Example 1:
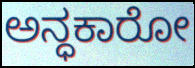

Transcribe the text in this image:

ಅನ್ಧಕಾರೋ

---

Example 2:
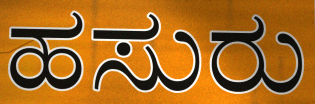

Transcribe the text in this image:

ಹಸುರು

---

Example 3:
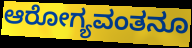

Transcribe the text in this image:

ಆರೋಗ್ಯವಂತನೂ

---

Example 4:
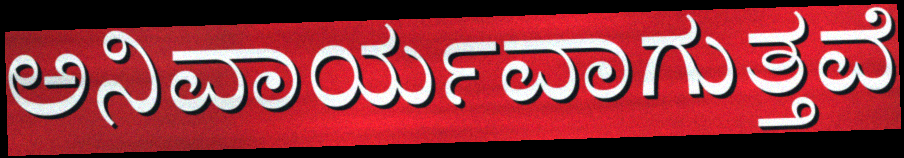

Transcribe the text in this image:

ಅನಿವಾರ್ಯವಾಗುತ್ತವೆ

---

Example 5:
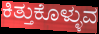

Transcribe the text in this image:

ಕಿತ್ತುಕೊಳ್ಳುವ